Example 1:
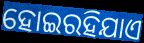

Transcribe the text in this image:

ହୋଇରହିଯାଏ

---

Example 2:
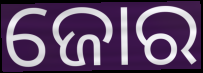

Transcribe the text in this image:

ଜୋର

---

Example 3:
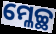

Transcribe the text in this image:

ମ୍ଳେଚ୍ଛ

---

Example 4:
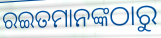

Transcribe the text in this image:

ରଇତମାନଙ୍କଠାରୁ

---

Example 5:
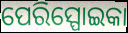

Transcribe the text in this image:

ପେରିସ୍ପୋଇକା